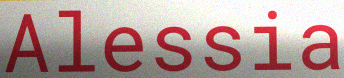
Alessia